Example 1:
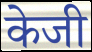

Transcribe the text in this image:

केजी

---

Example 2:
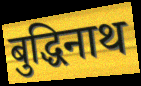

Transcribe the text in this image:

बुद्धिनाथ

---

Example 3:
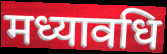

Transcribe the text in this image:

मध्‍यावधि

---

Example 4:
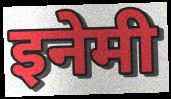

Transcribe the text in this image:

इनेमी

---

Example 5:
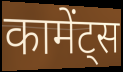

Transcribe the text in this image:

कामेंट्स